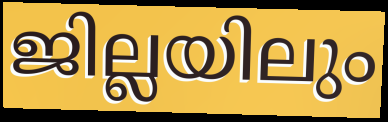
ജില്ലയിലും